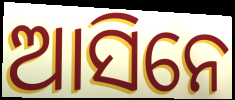
ଆସିନେ